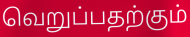
வெறுப்பதற்கும்